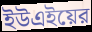
ইউএইয়ের